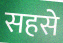
सहसे